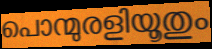
പൊന്മുരളിയൂതും